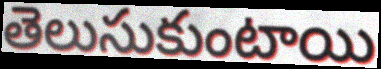
తెలుసుకుంటాయి